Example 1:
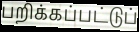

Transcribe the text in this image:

பறிக்கப்பட்டுப்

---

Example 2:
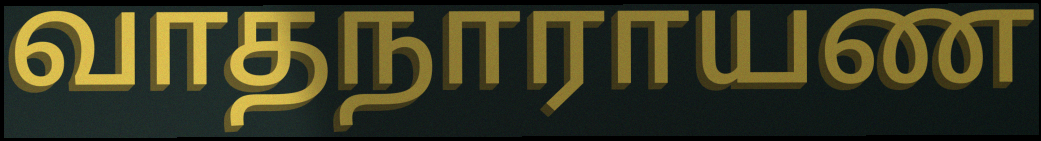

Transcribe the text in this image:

வாதநாராயண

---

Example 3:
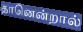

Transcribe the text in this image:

தானென்றால்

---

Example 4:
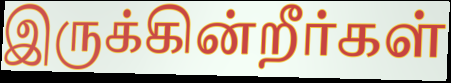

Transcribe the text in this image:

இருக்கின்றீர்கள்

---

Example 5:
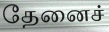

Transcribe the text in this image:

தேனைச்